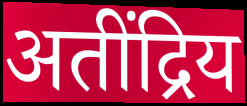
अतींद्रिय